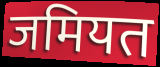
जमियत